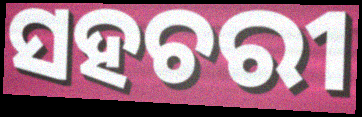
ସହଚରୀ